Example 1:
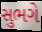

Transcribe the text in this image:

સુભગે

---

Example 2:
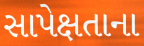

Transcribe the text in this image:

સાપેક્ષતાના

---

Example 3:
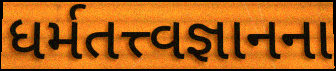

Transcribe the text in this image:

ધર્મતત્ત્વજ્ઞાનના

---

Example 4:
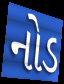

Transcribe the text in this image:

નોડ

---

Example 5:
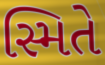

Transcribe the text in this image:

સ્મિતે